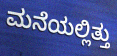
ಮನೆಯಲ್ಲಿತ್ತು